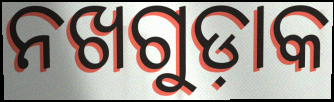
ନଖଗୁଡ଼ାକ